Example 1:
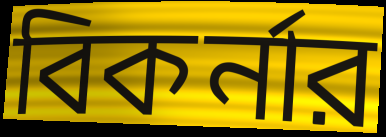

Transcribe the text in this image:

বিকর্নার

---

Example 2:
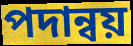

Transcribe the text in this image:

পদান্বয়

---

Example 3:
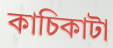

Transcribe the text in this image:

কাচিকাটা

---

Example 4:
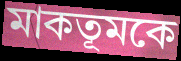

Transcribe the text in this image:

মাকতূমকে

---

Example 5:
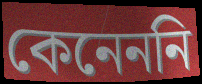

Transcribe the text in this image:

কেনেননি